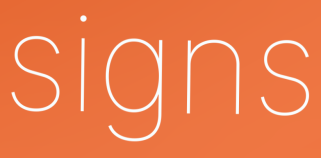
signs